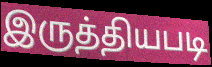
இருத்தியபடி